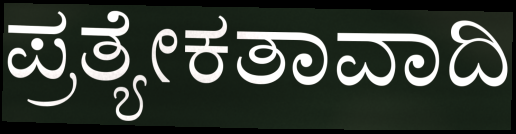
ಪ್ರತ್ಯೇಕತಾವಾದಿ